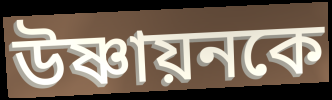
উষ্ণায়নকে